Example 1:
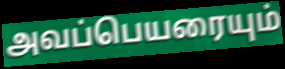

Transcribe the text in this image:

அவப்பெயரையும்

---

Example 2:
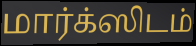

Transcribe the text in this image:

மார்க்ஸிடம்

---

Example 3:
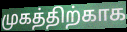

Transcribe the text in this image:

முகத்திற்காக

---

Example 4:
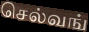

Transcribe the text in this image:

செல்வங்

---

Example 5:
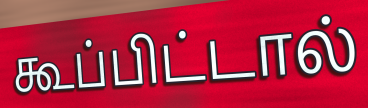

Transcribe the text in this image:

கூப்பிட்டால்